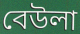
বেউলা